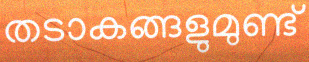
തടാകങ്ങളുമുണ്ട്